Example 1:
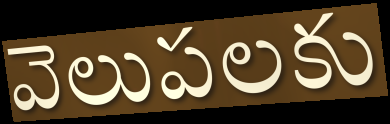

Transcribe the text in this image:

వెలుపలకు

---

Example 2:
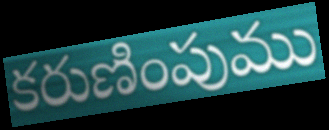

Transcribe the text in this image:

కరుణింపుము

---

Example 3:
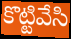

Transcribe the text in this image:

కొట్టివేసి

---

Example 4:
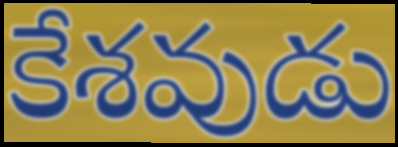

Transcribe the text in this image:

కేశవుడు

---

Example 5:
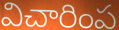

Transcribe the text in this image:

విచారింప